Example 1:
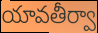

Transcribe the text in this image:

యావతీర్వా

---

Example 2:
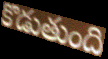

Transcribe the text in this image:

కొడుతుంది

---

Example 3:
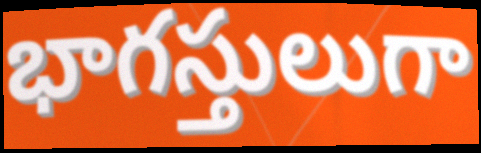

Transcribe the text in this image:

భాగస్తులుగా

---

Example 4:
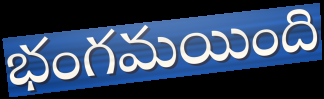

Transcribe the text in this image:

భంగమయింది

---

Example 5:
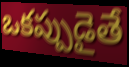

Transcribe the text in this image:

ఒకప్పుడైతే